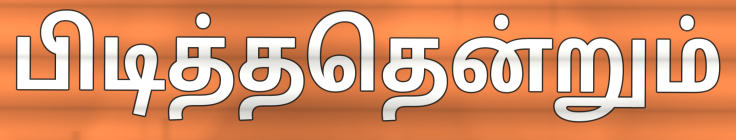
பிடித்ததென்றும்